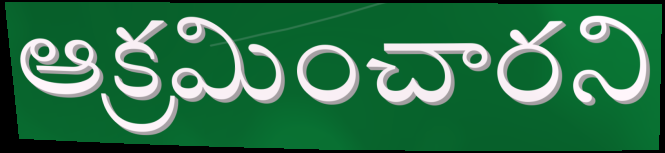
ఆక్రమించారని